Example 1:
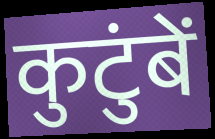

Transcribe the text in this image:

कुटुंबें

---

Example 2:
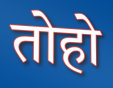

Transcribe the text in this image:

तोहो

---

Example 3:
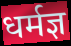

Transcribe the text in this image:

धर्मज्ञ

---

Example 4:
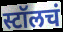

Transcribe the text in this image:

स्टॉलचं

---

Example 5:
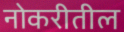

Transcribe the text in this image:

नोकरीतील